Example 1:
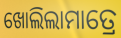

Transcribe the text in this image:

ଖୋଲିଲାମାତ୍ରେ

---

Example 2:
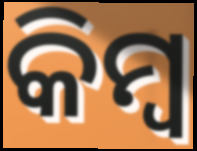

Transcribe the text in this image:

କିମ୍ବ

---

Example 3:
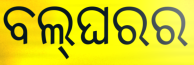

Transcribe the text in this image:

ବଲ୍‌ଘରର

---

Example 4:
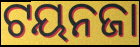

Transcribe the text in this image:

ଟୟନଜା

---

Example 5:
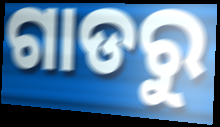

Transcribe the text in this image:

ଗାଡରୁ